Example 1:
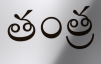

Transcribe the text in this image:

తంత్ర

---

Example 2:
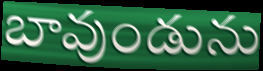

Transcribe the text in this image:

బావుండును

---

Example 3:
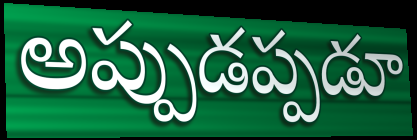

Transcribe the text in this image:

అప్పుడప్పడూ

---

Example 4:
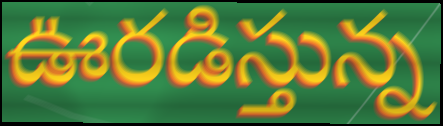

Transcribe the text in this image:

ఊరడిస్తున్న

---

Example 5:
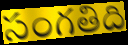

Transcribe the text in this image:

సంగతిది